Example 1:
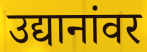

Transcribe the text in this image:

उद्यानांवर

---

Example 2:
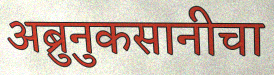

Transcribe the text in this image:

अब्रुनुकसानीचा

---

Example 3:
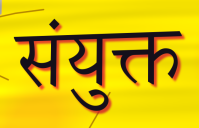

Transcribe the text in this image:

संयुक्त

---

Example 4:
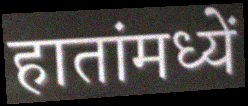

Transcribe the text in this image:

हातांमध्यें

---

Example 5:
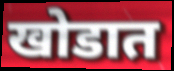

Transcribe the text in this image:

खोडात